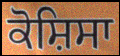
ਕੋਸ਼ਿਸਾ